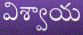
విశ్వాయ